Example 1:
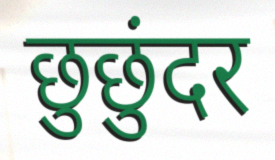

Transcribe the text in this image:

छुछुंदर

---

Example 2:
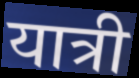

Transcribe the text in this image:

यात्री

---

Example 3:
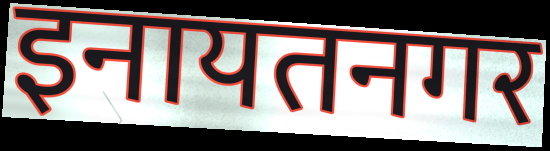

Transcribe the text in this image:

इनायतनगर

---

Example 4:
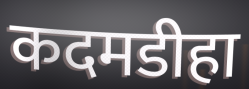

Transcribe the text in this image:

कदमडीहा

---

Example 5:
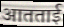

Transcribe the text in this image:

आतताई